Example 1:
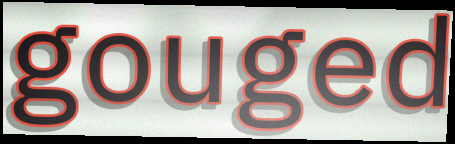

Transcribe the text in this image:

gouged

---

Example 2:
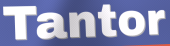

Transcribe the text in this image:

Tantor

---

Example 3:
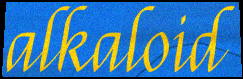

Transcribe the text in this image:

alkaloid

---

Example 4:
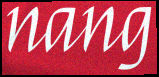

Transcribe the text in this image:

nang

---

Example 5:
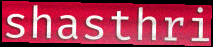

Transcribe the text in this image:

shasthri